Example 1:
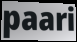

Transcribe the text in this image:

paari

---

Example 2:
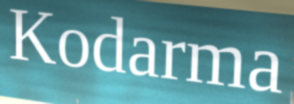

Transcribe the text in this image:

Kodarma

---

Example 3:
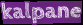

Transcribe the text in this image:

kalpane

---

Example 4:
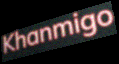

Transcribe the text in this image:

Khanmigo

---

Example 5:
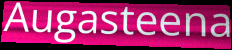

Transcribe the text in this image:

Augasteena